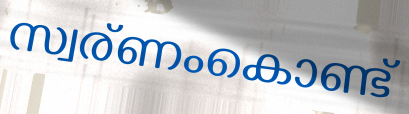
സ്വര്ണംകൊണ്ട്